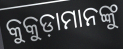
କୁକୁଡ଼ାମାନଙ୍କୁ